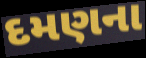
દમણના